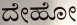
ದೇಹೋ